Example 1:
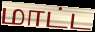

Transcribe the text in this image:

மாட்ட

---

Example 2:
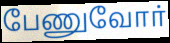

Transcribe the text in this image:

பேணுவோர்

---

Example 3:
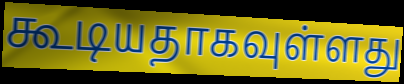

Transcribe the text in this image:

கூடியதாகவுள்ளது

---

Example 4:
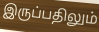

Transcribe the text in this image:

இருப்பதிலும்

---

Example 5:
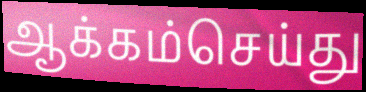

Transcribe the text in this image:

ஆக்கம்செய்து